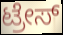
ಟ್ರೇಸ್